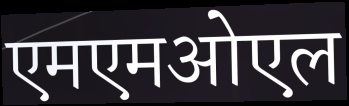
एमएमओएल